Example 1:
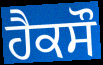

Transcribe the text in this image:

ਹੈਕਸੌ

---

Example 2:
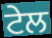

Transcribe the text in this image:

ਟੇਲ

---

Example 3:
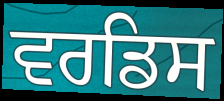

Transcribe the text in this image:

ਵਰਡਿਸ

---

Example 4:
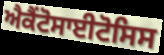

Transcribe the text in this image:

ਐਕੈਂਟੋਸਾਈਟੋਸਿਸ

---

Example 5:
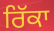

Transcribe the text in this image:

ਰਿੱਕਾ